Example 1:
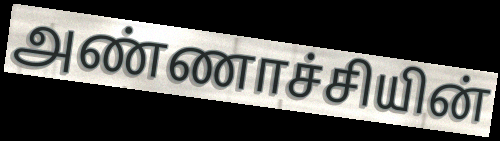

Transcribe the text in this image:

அண்ணாச்சியின்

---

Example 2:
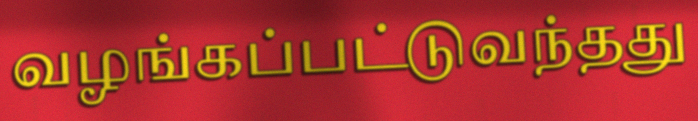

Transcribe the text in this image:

வழங்கப்பட்டுவந்தது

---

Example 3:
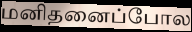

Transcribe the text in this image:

மனிதனைப்போல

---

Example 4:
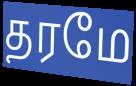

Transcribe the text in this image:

தரமே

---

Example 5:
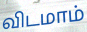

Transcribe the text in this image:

விடமாம்